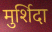
मुर्शिदा